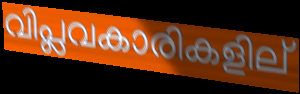
വിപ്ലവകാരികളില്